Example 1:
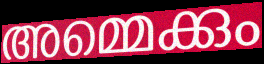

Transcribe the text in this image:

അമ്മെക്കും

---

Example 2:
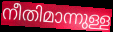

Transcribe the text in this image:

നീതിമാന്നുള്ള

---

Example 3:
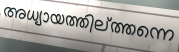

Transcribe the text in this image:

അധ്യായത്തില്ത്തന്നെ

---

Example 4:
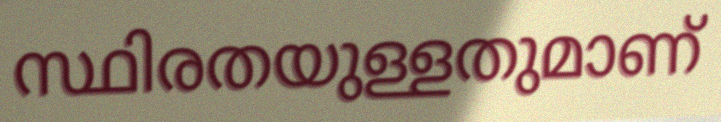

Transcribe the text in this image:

സ്ഥിരതയുള്ളതുമാണ്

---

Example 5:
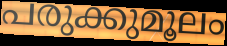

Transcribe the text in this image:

പരുക്കുമൂലം